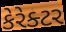
કેરેક્ટર